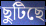
ছুটিছে